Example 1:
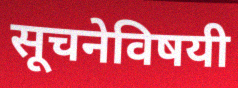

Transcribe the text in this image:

सूचनेविषयी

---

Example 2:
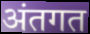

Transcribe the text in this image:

अंतगत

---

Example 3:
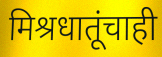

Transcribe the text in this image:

मिश्रधातूंचाही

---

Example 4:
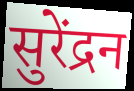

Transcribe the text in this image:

सुरेंद्रन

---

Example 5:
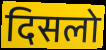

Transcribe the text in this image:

दिसलो